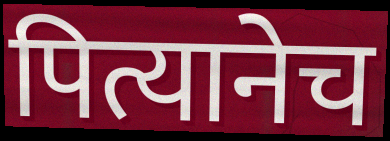
पित्यानेच